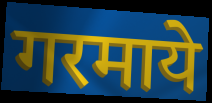
गरमाये